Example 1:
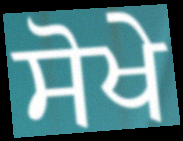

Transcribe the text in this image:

ਸੋਖੇ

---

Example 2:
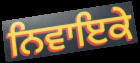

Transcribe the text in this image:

ਨਿਵਾਇਕੇ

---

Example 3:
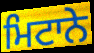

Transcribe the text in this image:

ਮਿਟਾਨੇ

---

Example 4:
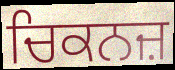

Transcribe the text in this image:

ਚਿਕਨਜ਼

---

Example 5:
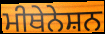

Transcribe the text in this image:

ਮੀਥੇਨੇਸ਼ਨ